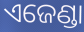
ଏଜେଣ୍ଡା